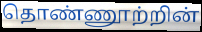
தொண்ணூற்றின்